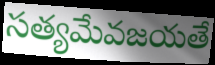
సత్యమేవజయతే